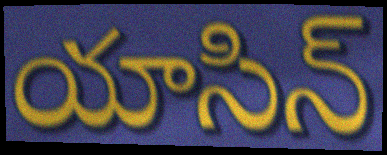
యాసిన్